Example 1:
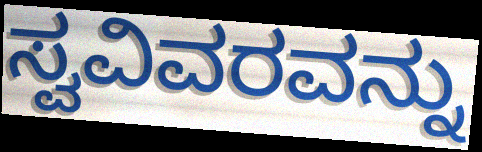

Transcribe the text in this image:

ಸ್ವವಿವರವನ್ನು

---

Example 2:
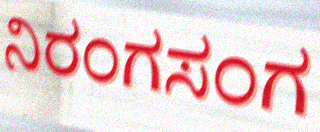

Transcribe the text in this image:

ನಿರಂಗಸಂಗ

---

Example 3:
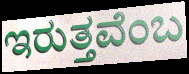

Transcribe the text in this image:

ಇರುತ್ತವೆಂಬ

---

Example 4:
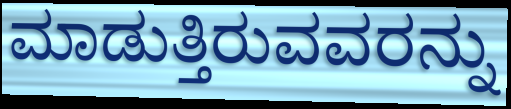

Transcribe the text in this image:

ಮಾಡುತ್ತಿರುವವರನ್ನು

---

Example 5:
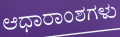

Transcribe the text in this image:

ಆಧಾರಾಂಶಗಳು